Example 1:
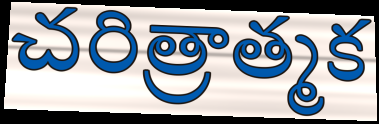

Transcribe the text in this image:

చరిత్రాత్మక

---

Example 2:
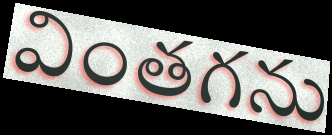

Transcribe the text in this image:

వింతగను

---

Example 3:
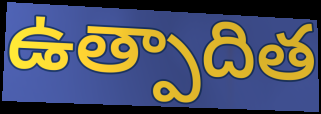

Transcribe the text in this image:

ఉత్పాదిత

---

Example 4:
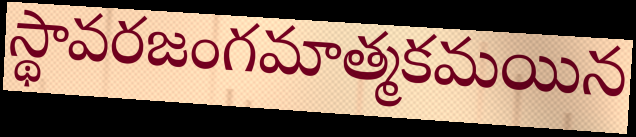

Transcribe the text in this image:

స్థావరజంగమాత్మకమయిన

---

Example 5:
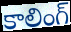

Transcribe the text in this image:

కాలింగ్